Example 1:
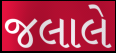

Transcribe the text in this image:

જલાલે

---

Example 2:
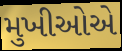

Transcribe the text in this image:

મુખીઓએ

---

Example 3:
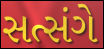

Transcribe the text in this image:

સત્સંગે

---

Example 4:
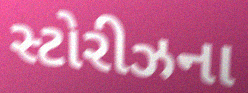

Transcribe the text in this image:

સ્ટોરીઝના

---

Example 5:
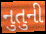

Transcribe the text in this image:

નુતુની